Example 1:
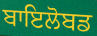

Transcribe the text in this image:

ਬਾਇਲੋਬਡ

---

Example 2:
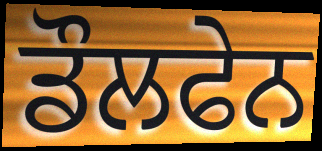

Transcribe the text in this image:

ਡੌਲਫੇਨ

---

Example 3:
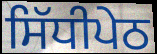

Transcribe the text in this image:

ਸਿੱਧੀਪੇਠ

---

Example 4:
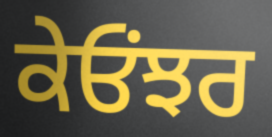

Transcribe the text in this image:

ਕੇਓਂਝਰ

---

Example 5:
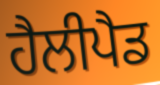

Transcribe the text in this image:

ਹੈਲੀਪੈਡ